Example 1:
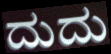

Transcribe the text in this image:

ದುದು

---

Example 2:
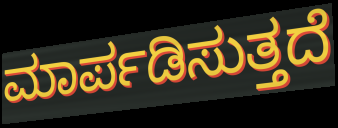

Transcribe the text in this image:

ಮಾರ್ಪಡಿಸುತ್ತದೆ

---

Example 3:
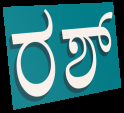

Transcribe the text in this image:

ರಶ್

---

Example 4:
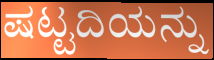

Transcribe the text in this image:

ಷಟ್ಟದಿಯನ್ನು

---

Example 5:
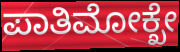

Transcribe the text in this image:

ಪಾತಿಮೋಕ್ಖೇ